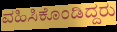
ವಹಿಸಿಕೊಂಡಿದ್ದರು